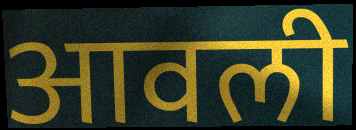
आवली